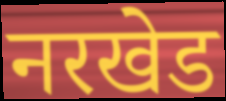
नरखेड